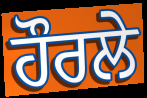
ਹੌਰਲੇ